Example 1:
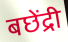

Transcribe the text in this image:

बछेंद्री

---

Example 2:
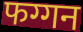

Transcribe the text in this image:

फग्‍गन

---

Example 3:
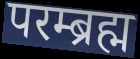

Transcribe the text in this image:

परम्ब्रह्म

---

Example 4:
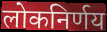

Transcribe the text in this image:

लोकनिर्णय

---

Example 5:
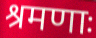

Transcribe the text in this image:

श्रमणाः